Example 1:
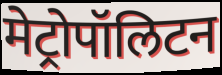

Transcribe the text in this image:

मेट्रोपॉलिटन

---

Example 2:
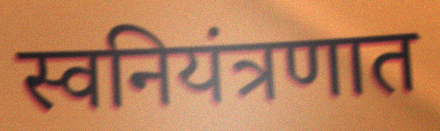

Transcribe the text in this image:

स्वनियंत्रणात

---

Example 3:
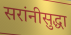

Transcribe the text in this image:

सरांनीसुद्धा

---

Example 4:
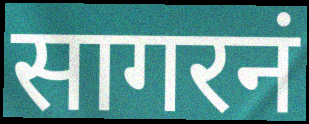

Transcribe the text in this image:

सागरनं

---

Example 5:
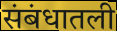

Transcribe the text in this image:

संबंधातली